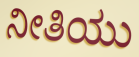
ನೀತಿಯು